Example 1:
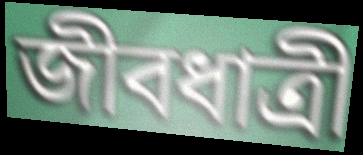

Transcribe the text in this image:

জীবধাত্রী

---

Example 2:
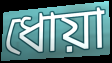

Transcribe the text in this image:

ধোয়া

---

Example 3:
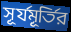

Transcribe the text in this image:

সূর্যমূর্তির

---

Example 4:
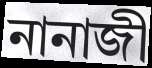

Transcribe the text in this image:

নানাজী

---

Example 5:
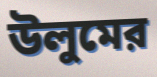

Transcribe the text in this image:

উলুমের